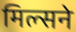
मिल्सने